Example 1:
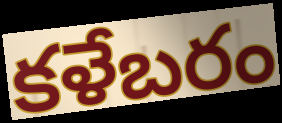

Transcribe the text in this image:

కళేబరం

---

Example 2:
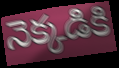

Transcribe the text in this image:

నెక్కడికి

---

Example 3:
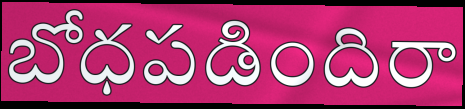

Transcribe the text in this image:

బోధపడిందిరా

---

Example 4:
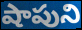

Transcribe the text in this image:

షాపుని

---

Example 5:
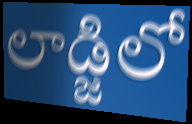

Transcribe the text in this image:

లాడ్జిలో